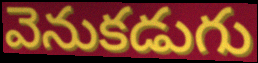
వెనుకడుగు